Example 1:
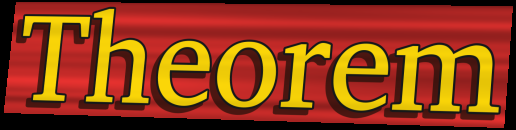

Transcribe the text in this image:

Theorem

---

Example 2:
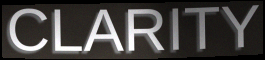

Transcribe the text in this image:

CLARITY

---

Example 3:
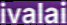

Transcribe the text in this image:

ivalai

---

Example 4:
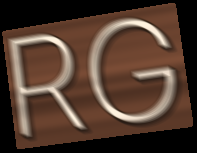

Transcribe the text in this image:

RG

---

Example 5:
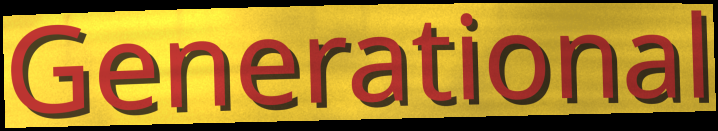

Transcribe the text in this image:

Generational